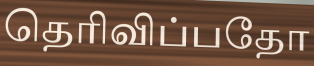
தெரிவிப்பதோ